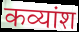
कव्यांश